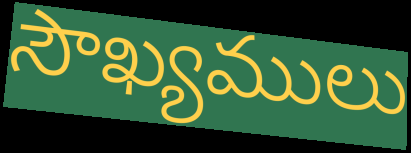
సౌఖ్యములు